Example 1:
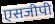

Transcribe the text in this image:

एसजीपी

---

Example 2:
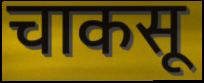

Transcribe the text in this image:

चाकसू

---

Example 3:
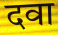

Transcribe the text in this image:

दवा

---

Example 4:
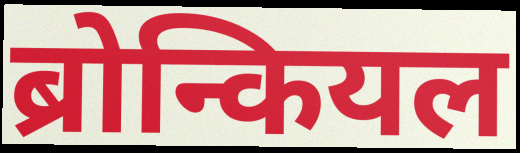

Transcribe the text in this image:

ब्रोन्कियल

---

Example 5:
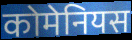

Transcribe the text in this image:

कोमेनियस